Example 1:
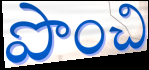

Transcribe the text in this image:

పొంచి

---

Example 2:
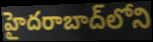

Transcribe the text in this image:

హైదరాబాద్‌లోని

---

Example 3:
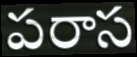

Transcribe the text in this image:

పరాస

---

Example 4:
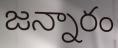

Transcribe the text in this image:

జన్నారం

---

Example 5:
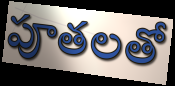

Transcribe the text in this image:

పూతలతో